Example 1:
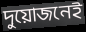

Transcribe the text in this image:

দুয়োজনেই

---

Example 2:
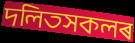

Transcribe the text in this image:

দলিতসকলৰ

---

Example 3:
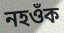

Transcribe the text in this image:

নহওঁক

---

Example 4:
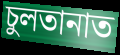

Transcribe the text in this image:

চুলতানাত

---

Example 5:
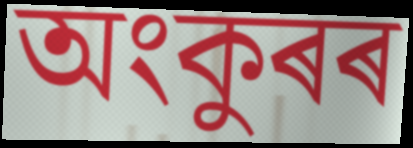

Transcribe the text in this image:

অংকুৰৰ